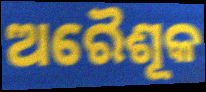
ଅରୈଶୂକ